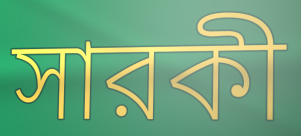
সারকী